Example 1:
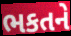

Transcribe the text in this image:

ભકતને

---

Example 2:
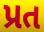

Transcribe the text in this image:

પ્રત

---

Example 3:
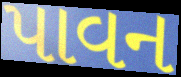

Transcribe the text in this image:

પાવન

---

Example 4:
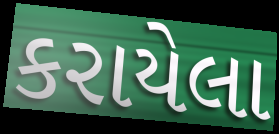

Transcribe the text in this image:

કરાયેલા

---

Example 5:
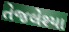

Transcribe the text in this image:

તેજલેશ્યા